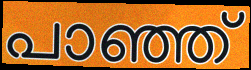
പാഞ്ഞ്